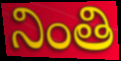
నింతి